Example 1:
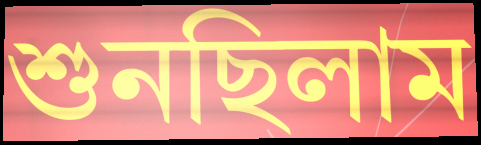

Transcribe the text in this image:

শুনছিলাম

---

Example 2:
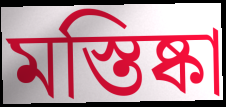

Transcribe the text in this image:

মস্তিষ্কা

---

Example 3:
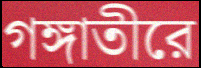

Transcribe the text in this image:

গঙ্গাতীরে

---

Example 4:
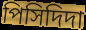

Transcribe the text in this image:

পিসিদিদা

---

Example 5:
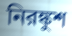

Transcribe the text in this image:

নিরঙ্কুশ